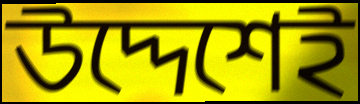
উদ্দেশেই